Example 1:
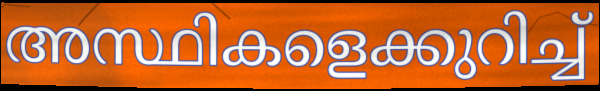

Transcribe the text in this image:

അസ്ഥികളെക്കുറിച്ച്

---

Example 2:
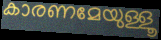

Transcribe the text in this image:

കാരണമേയുള്ളൂ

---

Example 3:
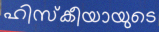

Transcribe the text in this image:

ഹിസ്കീയായുടെ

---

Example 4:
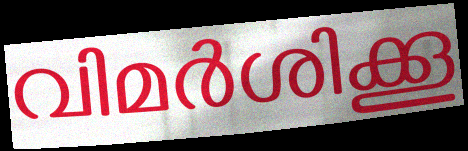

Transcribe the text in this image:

വിമർശിക്കൂ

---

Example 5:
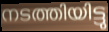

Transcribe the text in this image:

നടത്തിയിട്ടു